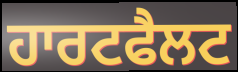
ਹਾਰਟਫੈਲਟ